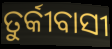
ତୁର୍କୀବାସୀ